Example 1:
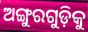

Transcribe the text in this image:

ଅଙ୍ଗୁରଗୁଡ଼ିକୁ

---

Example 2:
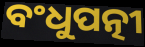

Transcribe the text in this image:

ବଂଧୁପତ୍ନୀ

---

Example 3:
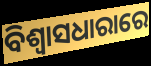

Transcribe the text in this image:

ବିଶ୍ଵାସଧାରାରେ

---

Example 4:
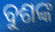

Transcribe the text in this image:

ବୁଶଙ୍କ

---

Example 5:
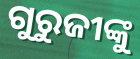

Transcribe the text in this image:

ଗୁରୁଜୀଙ୍କୁ